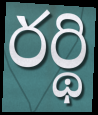
రర్థి